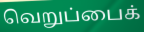
வெறுப்பைக்